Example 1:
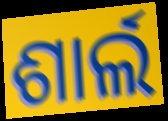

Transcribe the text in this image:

ଶାର୍ଲ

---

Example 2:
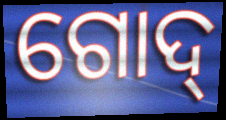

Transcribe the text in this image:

ଗୋଦ୍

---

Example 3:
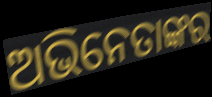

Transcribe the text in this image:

ଅଭିନେତାଙ୍କର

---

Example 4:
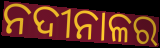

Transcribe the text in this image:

ନଦୀନାଳର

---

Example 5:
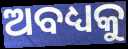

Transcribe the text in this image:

ଅବଧ୍ୟକୁ